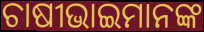
ଚାଷୀଭାଇମାନଙ୍କ